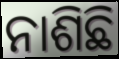
ନାଶିଛି